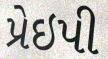
પ્રેઇપી